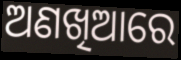
ଅଣଖିଆରେ